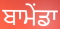
ਬਾਮੇਂਡਾ